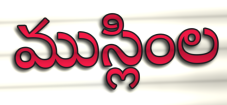
ముస్లింల